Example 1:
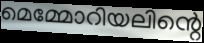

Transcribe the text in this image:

മെമ്മോറിയലിന്റെ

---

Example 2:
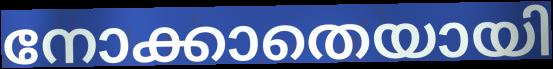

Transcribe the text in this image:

നോക്കാതെയായി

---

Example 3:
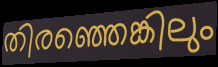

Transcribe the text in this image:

തിരഞ്ഞെങ്കിലും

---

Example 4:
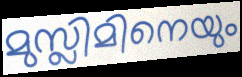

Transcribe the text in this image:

മുസ്ലിമിനെയും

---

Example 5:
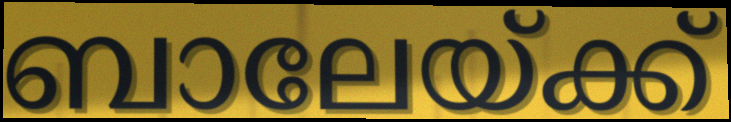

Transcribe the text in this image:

ബാലേയ്ക്ക്